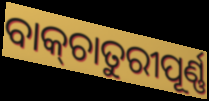
ବାକ୍‌ଚାତୁରୀପୂର୍ଣ୍ଣ